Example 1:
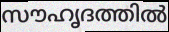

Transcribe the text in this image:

സൗഹൃദത്തിൽ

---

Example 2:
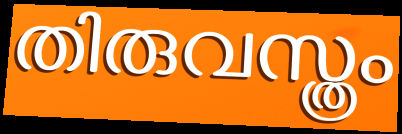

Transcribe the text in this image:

തിരുവസ്ത്രം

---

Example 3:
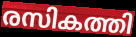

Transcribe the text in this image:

രസികത്തി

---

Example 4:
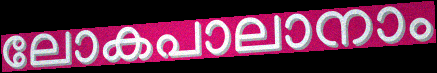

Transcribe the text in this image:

ലോകപാലാനാം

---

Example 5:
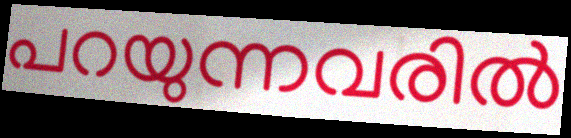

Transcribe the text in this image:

പറയുന്നവരിൽ